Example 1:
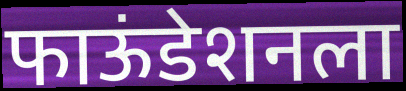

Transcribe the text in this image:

फाऊंडेशनला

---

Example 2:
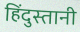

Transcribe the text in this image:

हिंदुस्तानी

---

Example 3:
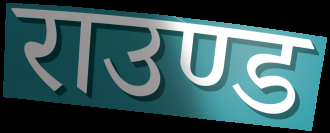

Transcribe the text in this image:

राउण्ड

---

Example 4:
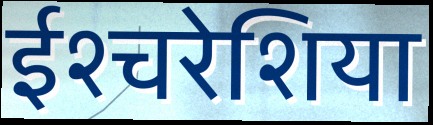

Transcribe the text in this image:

ईश्चरेशिया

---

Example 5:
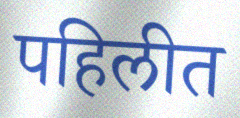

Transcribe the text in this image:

पहिलीत